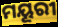
ମୟୂରୀ